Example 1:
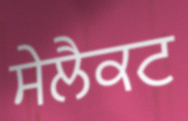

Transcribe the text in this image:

ਸੇਲੈਕਟ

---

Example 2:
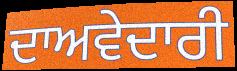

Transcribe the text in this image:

ਦਾਅਵੇਦਾਰੀ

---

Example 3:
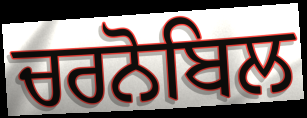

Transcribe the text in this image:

ਚਰਨੋਬਿਲ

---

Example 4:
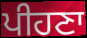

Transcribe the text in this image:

ਪੀਹਣਾ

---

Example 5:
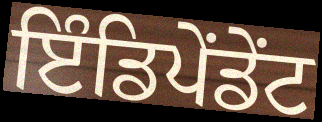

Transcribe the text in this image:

ਇੰਡਿਪੇਂਡੇਂਟ